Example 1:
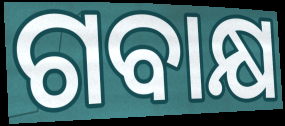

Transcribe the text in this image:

ଗବାକ୍ଷ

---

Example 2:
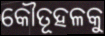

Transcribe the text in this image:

କୌତୂହଳକୁ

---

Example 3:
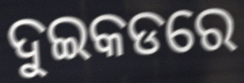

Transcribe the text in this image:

ଦୁଇକଡରେ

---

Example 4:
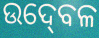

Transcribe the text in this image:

ଉଦ୍‍ବେଳ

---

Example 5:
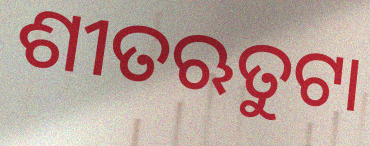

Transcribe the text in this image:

ଶୀତଋତୁଟା